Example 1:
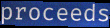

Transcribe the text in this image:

proceeds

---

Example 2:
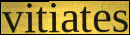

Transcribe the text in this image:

vitiates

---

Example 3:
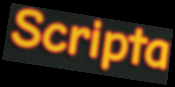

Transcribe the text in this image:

Scripta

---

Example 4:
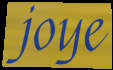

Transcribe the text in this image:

joye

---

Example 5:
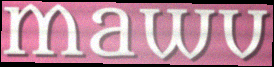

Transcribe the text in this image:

mawu